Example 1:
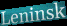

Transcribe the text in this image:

Leninsk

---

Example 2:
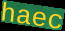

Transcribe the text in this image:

haec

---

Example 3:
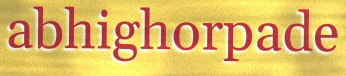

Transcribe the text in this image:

abhighorpade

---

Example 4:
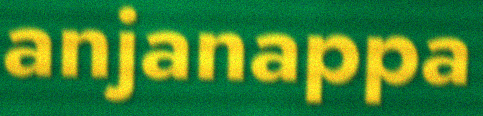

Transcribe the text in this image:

anjanappa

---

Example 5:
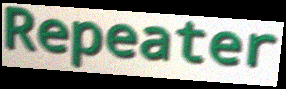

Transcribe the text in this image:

Repeater